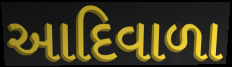
આદિવાળા